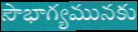
సౌభాగ్యమునకు